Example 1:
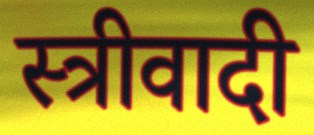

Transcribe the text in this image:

स्त्रीवादी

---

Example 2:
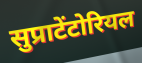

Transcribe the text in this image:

सुप्राटेंटोरियल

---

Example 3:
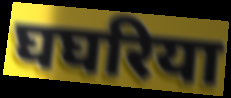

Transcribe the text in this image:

घघरिया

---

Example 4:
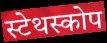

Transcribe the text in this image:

स्टेथस्कोप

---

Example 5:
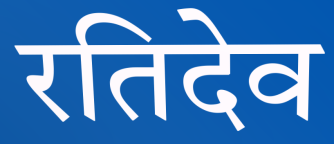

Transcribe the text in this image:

रतिदेव